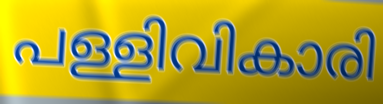
പള്ളിവികാരി